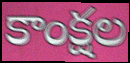
కాంక్షల